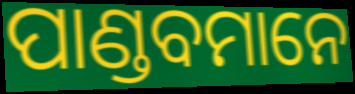
ପାଣ୍ଡବମାନେ